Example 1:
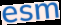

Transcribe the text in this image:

esm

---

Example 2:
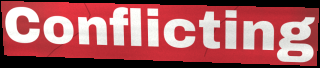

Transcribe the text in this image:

Conflicting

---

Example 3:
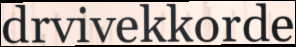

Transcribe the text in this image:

drvivekkorde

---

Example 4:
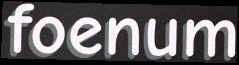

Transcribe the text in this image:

foenum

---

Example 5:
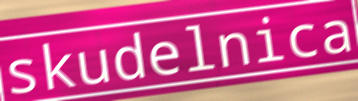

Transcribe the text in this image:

skudelnica